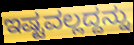
ಇಷ್ಟವಲ್ಲದ್ದನ್ನು